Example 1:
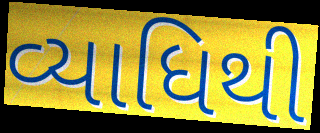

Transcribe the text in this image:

વ્યાધિથી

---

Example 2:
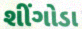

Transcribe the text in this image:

શીંગોડા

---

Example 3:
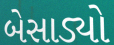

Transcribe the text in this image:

બેસાડ્યો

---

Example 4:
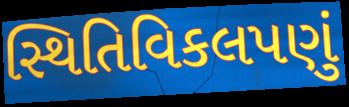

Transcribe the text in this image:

સ્થિતિવિકલપણું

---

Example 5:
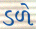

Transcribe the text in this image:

ડળે